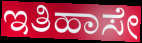
ಇತಿಹಾಸೇ